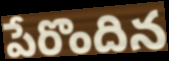
పేరొందిన